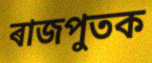
ৰাজপুতক